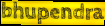
bhupendra